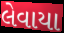
લેવાયા